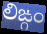
లిఙ్గం